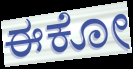
ಈಕೋ